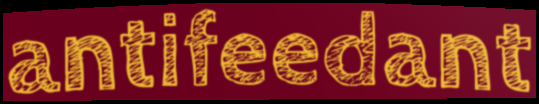
antifeedant